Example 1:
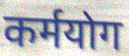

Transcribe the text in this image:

कर्मयोग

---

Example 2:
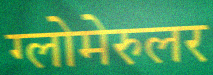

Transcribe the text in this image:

ग्लोमेरुलर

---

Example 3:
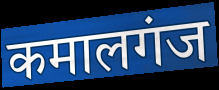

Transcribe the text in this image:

कमालगंज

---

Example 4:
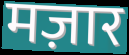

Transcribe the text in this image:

मज़ार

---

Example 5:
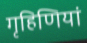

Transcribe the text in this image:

गृहिणियां